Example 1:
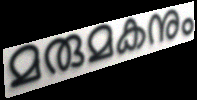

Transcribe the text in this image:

മരുമകനും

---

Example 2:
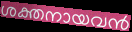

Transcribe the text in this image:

ശക്തനായവൻ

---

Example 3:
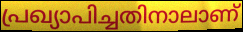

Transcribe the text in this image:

പ്രഖ്യാപിച്ചതിനാലാണ്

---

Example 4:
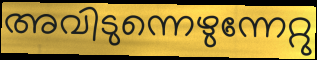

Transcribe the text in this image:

അവിടുന്നെഴുന്നേറ്റു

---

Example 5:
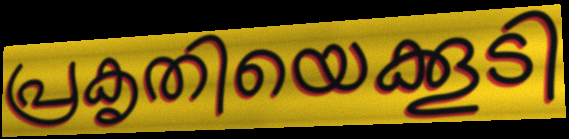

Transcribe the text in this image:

പ്രകൃതിയെക്കൂടി